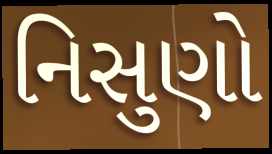
નિસુણો